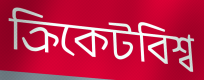
ক্রিকেটবিশ্ব